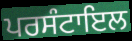
ਪਰਸੰਟਾਇਲ